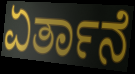
ಏರ್ತಾನೆ